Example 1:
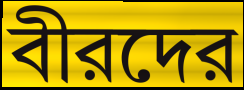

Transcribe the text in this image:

বীরদের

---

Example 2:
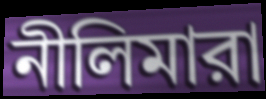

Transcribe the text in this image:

নীলিমারা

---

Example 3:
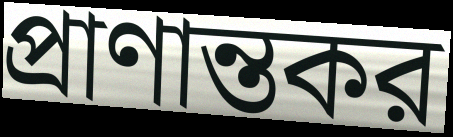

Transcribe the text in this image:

প্রাণান্তকর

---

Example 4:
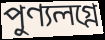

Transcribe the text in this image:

পুণ্যলগ্নে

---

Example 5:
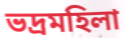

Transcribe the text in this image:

ভদ্রমহিলা